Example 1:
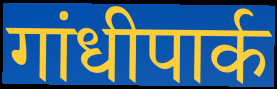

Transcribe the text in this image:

गांधीपार्क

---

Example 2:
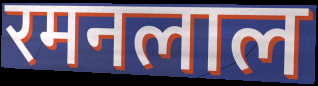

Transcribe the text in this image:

रमनलाल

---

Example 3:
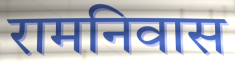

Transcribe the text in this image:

रामनिवास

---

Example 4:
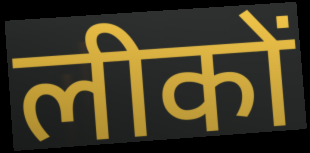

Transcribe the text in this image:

लीकों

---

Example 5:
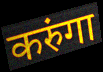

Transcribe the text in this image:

करुंगा